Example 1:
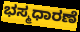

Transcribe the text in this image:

ಭಸ್ಮಧಾರಣೆ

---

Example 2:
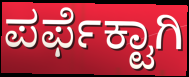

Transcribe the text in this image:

ಪರ್ಫೆಕ್ಟಾಗಿ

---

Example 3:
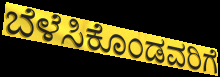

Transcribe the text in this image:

ಬೆಳೆಸಿಕೊಂಡವರಿಗೆ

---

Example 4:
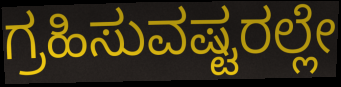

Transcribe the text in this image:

ಗ್ರಹಿಸುವಷ್ಟರಲ್ಲೇ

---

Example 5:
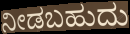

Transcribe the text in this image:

ನೀಡಬಹುದು